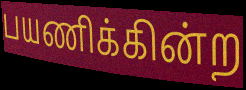
பயணிக்கின்ற